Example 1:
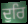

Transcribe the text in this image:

ਦੁਰਿ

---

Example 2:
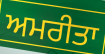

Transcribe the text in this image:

ਅਮਰੀਤਾ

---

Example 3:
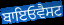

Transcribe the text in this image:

ਬਾਇਓਵੈਸਟ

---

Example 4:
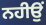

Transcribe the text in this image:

ਨਹੀਉਂ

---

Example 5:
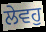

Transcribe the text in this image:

ਲੇਵਹੁ